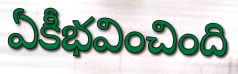
ఏకీభవించింది